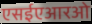
एसईएआरओ